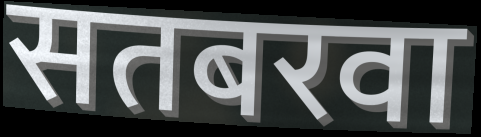
सतबरवा